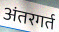
अंतरगर्त